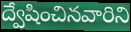
ద్వేషించినవారిని